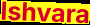
Ishvara